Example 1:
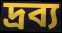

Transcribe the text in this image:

দ্রব্য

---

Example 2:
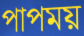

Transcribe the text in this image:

পাপময়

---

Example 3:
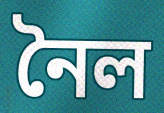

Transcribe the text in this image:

নৈল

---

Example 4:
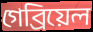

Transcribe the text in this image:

গেব্রিয়েল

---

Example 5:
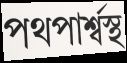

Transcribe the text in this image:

পথপার্শ্বস্থ